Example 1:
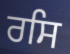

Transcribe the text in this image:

ਰਸਿ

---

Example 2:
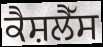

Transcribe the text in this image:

ਕੈਸ਼ਲੈੱਸ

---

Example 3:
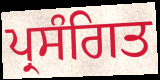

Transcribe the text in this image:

ਪ੍ਰਸੰਗਿਤ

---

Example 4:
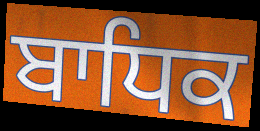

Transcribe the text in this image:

ਬਾਧਿਕ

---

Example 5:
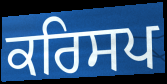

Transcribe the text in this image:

ਕਰਿਸਪ